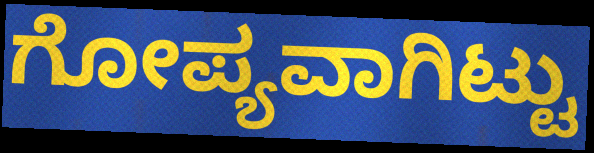
ಗೋಪ್ಯವಾಗಿಟ್ಟು